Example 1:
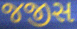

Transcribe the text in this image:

જજીસ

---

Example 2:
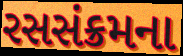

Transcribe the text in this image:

રસસંક્રમના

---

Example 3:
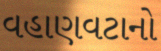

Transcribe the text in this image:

વહાણવટાનો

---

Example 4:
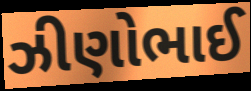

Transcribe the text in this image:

ઝીણોભાઈ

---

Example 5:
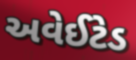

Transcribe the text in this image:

અવેઈટેડ